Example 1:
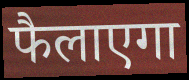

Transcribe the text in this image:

फैलाएगा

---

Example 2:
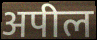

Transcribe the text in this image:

अपील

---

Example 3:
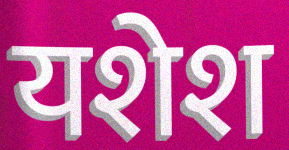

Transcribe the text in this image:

यशेश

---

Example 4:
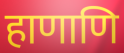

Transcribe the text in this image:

हाणाणि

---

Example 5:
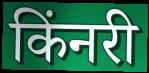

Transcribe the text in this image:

किंनरी